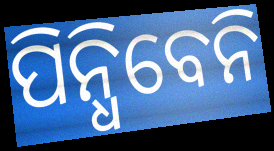
ପିନ୍ଧିବେନି